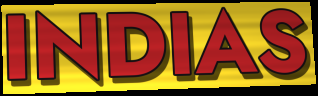
INDIAS